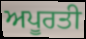
ਅਪੂਰਤੀ